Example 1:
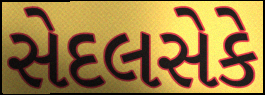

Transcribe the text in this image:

સેદલસેકે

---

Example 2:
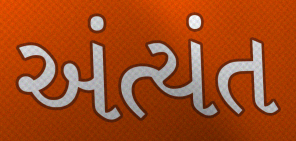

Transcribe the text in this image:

અંત્યંત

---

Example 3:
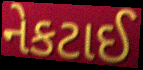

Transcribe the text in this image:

નેકટાઈ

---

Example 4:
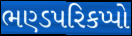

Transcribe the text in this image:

ભણ્ડપરિકપ્પો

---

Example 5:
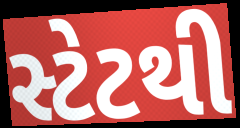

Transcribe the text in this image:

સ્ટેટથી